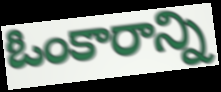
ఓంకారాన్ని